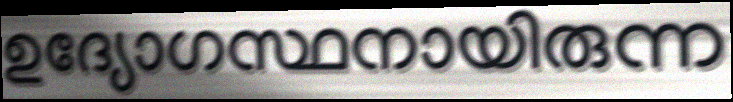
ഉദ്യോഗസ്ഥനായിരുന്ന